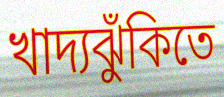
খাদ্যঝুঁকিতে